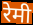
रेमी